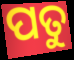
ପତୁ